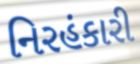
નિરહંકારી